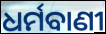
ଧର୍ମବାଣୀ